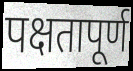
पक्षतापूर्ण